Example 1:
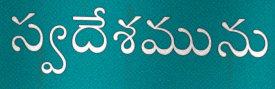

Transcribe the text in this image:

స్వదేశమును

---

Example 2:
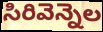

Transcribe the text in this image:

సిరివెన్నెల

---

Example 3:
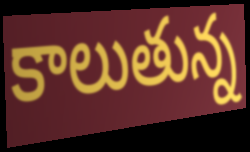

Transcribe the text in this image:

కాలుతున్న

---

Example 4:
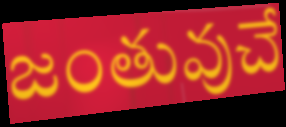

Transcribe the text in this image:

జంతువుచే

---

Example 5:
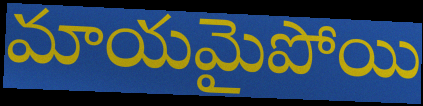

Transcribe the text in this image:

మాయమైపోయి